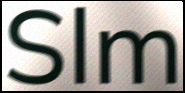
Slm